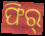
ଫିର୍